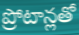
ప్రోటాన్లతో